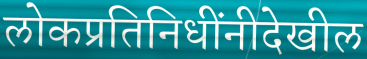
लोकप्रतिनिधींनीदेखील